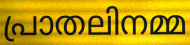
പ്രാതലിനമ്മ